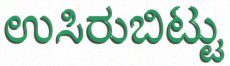
ಉಸಿರುಬಿಟ್ಟು